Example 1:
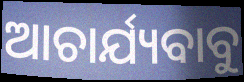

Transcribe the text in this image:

ଆଚାର୍ଯ୍ୟବାବୁ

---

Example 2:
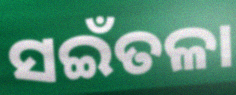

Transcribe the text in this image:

ସଇଁତଳା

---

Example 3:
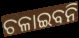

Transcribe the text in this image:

ଚଳାଇବନି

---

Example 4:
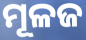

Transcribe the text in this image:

ମୂଳଜ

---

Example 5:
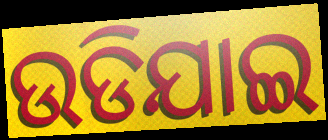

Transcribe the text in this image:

ଉଡିଯାଇ